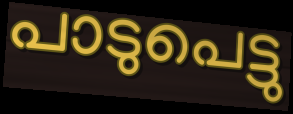
പാടുപെട്ടു